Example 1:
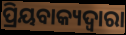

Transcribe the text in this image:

ପ୍ରିୟବାକ୍ୟଦ୍ୱାରା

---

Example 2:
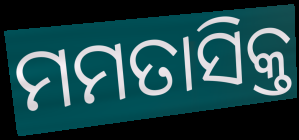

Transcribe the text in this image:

ମମତାସିକ୍ତ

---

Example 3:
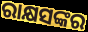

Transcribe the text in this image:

ରାକ୍ଷସଙ୍କର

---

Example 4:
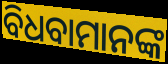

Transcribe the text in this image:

ବିଧବାମାନଙ୍କ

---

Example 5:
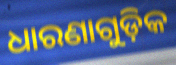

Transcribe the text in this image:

ଧାରଣାଗୁଡ଼ିକ